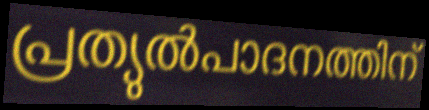
പ്രത്യുൽപാദനത്തിന്